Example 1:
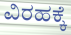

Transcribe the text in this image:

ವಿರಹಕ್ಕೆ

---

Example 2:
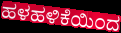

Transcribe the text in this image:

ಹಳಹಳಿಕೆಯಿಂದ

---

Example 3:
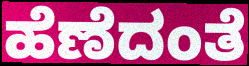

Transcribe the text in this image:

ಹೆಣೆದಂತೆ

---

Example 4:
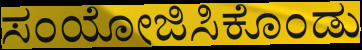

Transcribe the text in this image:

ಸಂಯೋಜಿಸಿಕೊಂಡು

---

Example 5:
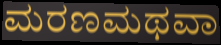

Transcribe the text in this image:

ಮರಣಮಥವಾ